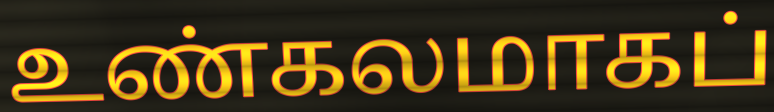
உண்கலமாகப்